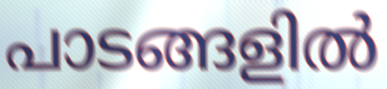
പാടങ്ങളിൽ